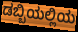
ಡಬ್ಬಿಯಲ್ಲಿಯ